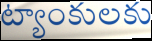
ట్యాంకులకు